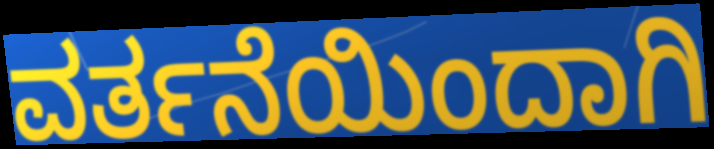
ವರ್ತನೆಯಿಂದಾಗಿ